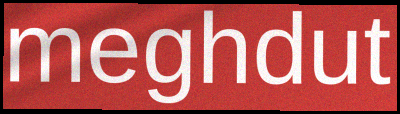
meghdut